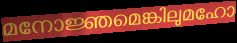
മനോജ്ഞമെങ്കിലുമഹോ